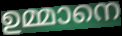
ഉമ്മാനെ